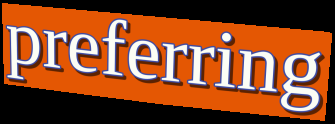
preferring